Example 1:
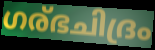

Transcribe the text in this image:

ഗര്ഭചിദ്രം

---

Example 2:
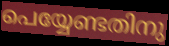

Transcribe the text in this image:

പെയ്യേണ്ടതിനു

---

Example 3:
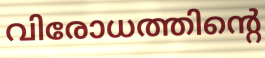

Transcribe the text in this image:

വിരോധത്തിന്റെ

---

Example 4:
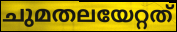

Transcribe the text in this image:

ചുമതലയേറ്റത്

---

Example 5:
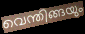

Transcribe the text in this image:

വെന്തിങ്ങയും